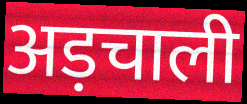
अड़चाली